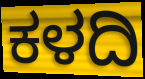
ಕಳದಿ